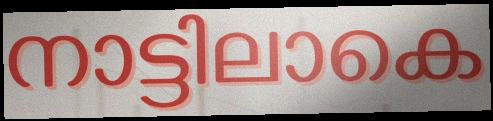
നാട്ടിലാകെ